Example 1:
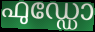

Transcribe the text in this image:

ഫുഡ്ഡോ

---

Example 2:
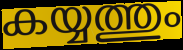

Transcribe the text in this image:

കയ്യത്തും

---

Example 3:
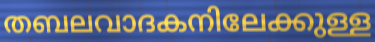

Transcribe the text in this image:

തബലവാദകനിലേക്കുള്ള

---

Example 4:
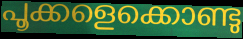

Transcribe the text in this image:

പൂക്കളെക്കൊണ്ടു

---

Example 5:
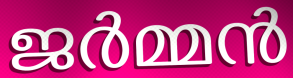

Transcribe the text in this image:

ജർമ്മൻ